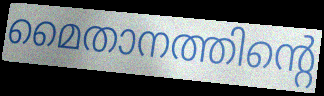
മൈതാനത്തിന്റെ